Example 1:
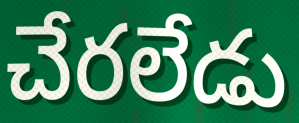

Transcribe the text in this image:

చేరలేడు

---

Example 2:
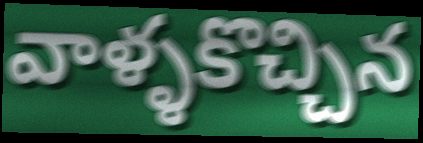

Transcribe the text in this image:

వాళ్ళకొచ్చిన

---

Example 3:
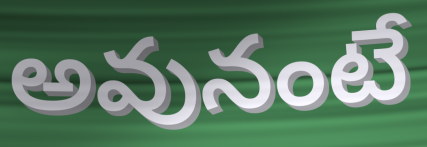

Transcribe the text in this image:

అవునంటే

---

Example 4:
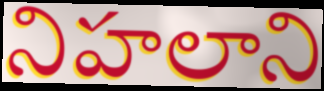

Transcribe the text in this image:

నిహలాని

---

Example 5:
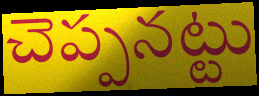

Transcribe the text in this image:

చెప్పనట్టు